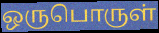
ஒருபொருள்